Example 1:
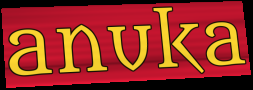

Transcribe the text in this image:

anuka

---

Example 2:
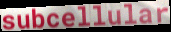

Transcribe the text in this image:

subcellular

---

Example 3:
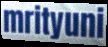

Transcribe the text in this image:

mrityuni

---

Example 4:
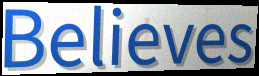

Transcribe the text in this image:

Believes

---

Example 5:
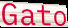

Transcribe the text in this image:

Gato